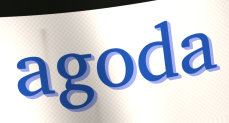
agoda